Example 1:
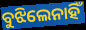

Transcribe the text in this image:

ବୁଝିଲେନାହିଁ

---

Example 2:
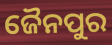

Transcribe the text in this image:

ଜୈନପୁର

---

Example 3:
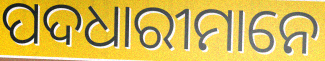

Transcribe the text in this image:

ପଦଧାରୀମାନେ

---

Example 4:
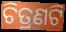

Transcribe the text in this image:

ଚିତ୍ରଣଟି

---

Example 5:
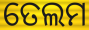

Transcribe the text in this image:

ତେଲମ